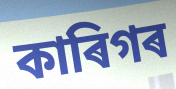
কাৰিগৰ